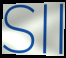
SII